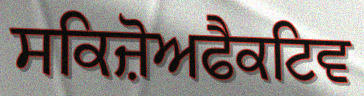
ਸਕਿਜ਼ੋਅਫੈਕਟਿਵ